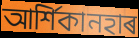
আৰ্শিকানহাৰ